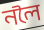
নলৈ